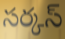
సర్కస్